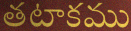
తటాకము